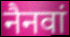
नैनवां